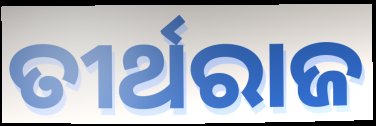
ତୀର୍ଥରାଜ